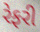
રેફરી